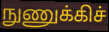
நுணுக்கிச்